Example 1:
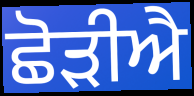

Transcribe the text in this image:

ਛੋੜੀਐ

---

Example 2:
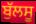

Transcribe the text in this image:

ਬੁੱਲਸੂ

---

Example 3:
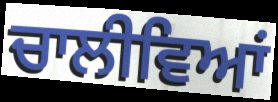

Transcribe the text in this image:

ਚਾਲੀਵਿਆਂ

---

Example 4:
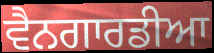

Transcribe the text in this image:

ਵੈਨਗਾਰਡੀਆ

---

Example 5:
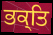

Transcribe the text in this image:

ਭਕ੍ਤਿ